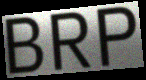
BRP